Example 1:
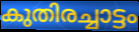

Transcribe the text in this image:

കുതിരച്ചാട്ടം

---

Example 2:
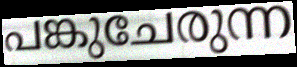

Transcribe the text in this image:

പങ്കുചേരുന്ന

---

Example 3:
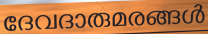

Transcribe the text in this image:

ദേവദാരുമരങ്ങൾ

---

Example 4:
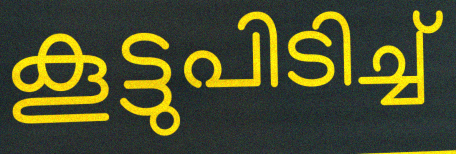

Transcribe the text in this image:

കൂട്ടുപിടിച്ച്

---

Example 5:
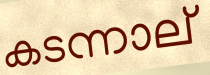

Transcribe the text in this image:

കടന്നാല്